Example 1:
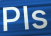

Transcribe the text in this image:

Pls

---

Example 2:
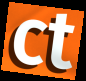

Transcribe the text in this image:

ct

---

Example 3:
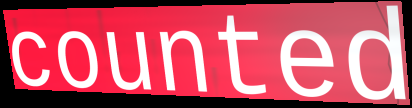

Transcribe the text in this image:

counted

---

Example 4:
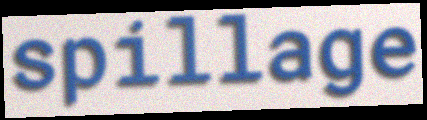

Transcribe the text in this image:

spillage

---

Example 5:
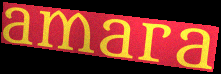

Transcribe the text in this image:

amara